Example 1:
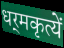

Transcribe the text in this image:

धर्मकृत्यें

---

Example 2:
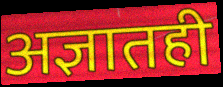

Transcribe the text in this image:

अज्ञातही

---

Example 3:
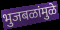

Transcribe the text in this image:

भुजबळांमुळे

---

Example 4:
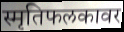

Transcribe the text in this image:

स्मृतिफलकावर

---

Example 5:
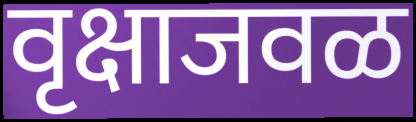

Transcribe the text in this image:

वृक्षाजवळ